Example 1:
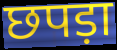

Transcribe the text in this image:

छपड़ा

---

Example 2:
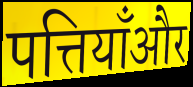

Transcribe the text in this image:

पत्तियाँऔर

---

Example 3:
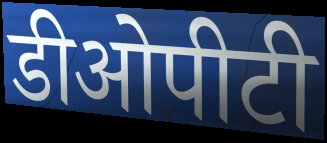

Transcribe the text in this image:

डीओपीटी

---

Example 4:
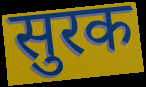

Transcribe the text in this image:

सुरक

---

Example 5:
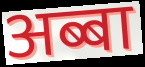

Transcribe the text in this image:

अब्बा